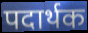
पदार्थक